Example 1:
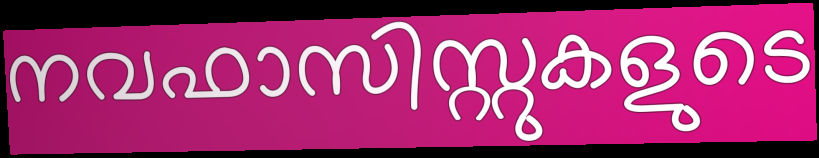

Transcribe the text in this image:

നവഫാസിസ്റ്റുകളുടെ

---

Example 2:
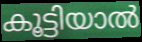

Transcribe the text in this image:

കൂട്ടിയാൽ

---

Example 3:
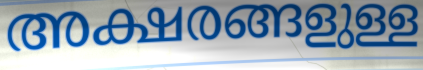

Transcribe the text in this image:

അക്ഷരങ്ങളുള്ള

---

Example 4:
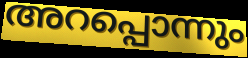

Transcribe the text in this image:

അറപ്പൊന്നും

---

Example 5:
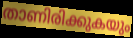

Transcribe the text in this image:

താണിരിക്കുകയും